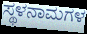
ಸ್ಥಳನಾಮಗಳ